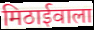
मिठाईवाला